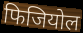
फिजियोल